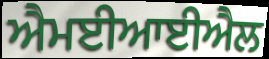
ਐਮਈਆਈਐਲ